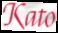
Kato